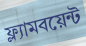
ফ্ল্যামবয়েন্ট